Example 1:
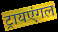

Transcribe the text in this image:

ट्रायएंगल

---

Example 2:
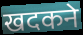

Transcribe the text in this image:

खदकने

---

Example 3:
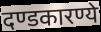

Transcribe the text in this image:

दण्डकारण्ये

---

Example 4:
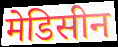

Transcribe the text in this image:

मेडिसीन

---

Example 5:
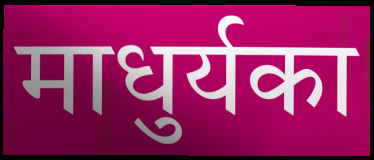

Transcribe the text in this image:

माधुर्यका